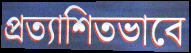
প্রত্যাশিতভাবে